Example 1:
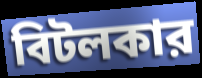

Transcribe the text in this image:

বিটলকার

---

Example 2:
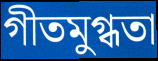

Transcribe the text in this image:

গীতমুগ্ধতা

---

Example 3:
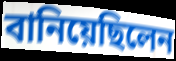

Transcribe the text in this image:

বানিয়েছিলেন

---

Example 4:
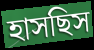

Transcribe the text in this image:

হাসছিস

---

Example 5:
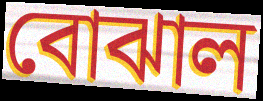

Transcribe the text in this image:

বোঝাল